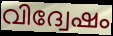
വിദ്വേഷം